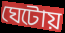
ঘেটোয়